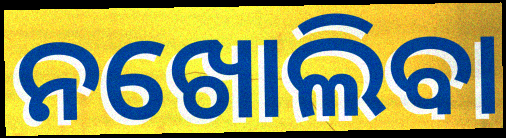
ନଖୋଲିବା